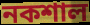
নকশাল